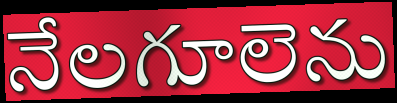
నేలగూలెను